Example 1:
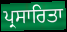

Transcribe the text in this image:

ਪ੍ਰਸਾਰਿਤਾ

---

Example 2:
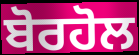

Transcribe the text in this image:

ਬੋਰਹੋਲ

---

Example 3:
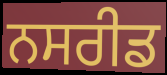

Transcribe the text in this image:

ਨਸਰੀਡ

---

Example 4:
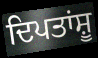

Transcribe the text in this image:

ਦਿਪਤਾਂਸ਼ੂ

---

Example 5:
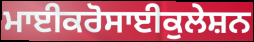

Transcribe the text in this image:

ਮਾਈਕਰੋਸਾਈਕੁਲੇਸ਼ਨ